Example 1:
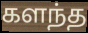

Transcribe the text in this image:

களந்த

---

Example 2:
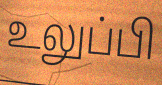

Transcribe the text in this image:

உலுப்பி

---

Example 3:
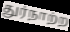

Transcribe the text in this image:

துர்நாற்ற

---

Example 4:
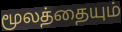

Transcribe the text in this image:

மூலத்தையும்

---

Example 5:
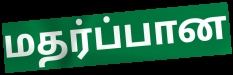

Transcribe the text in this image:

மதர்ப்பான